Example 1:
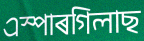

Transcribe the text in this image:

এস্পাৰগিলাছ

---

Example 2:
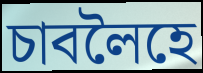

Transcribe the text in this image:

চাবলৈহে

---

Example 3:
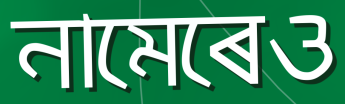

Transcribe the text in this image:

নামেৰেও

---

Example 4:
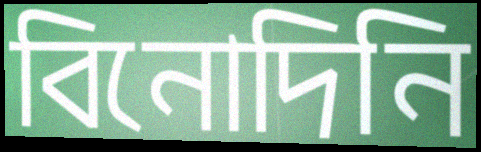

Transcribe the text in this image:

বিনোদিনি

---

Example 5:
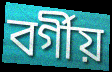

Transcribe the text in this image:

বৰ্গীয়